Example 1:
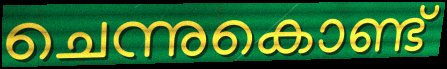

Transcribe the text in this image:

ചെന്നുകൊണ്ട്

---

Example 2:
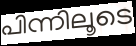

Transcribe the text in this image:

പിന്നിലൂടെ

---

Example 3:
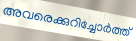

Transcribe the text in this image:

അവരെക്കുറിച്ചോർത്ത്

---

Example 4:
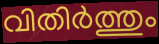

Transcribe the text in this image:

വിതിർത്തും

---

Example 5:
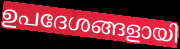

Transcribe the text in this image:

ഉപദേശങ്ങളായി